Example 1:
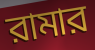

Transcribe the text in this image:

রামার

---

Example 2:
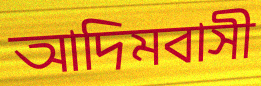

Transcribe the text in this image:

আদিমবাসী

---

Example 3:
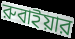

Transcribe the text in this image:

রুবাইয়ার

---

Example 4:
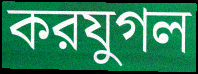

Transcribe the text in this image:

করযুগল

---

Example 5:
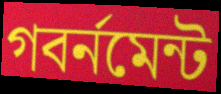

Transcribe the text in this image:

গবর্নমেন্ট